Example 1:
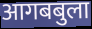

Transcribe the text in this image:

आगबबुला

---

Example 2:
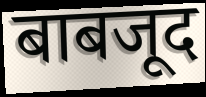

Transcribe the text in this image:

बाबजूद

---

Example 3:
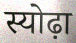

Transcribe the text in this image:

स्योढ़ा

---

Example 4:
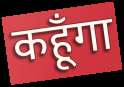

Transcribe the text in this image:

कहूँगा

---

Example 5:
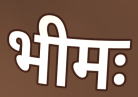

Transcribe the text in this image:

भीमः